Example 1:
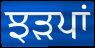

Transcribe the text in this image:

ਝੜਪਾਂ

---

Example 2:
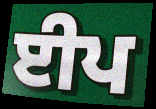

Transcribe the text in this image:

ਈਪ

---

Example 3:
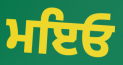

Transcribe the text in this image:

ਮਇਓ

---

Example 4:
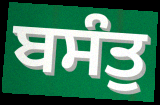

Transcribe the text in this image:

ਬਸੰਤੁ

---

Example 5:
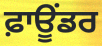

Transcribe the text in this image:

ਫ਼ਾਊਂਡਰ